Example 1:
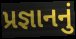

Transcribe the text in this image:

પ્રજ્ઞાનનું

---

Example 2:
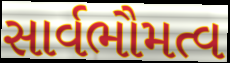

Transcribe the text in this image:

સાર્વભૌમત્વ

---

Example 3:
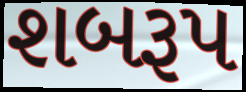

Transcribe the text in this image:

શબરૂપ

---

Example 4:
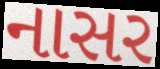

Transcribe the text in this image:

નાસર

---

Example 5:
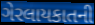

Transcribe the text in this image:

ગેરલાયકાતની